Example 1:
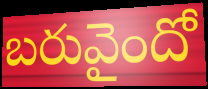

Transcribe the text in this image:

బరువైందో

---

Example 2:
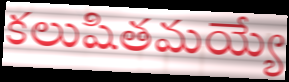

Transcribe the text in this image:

కలుషితమయ్యే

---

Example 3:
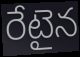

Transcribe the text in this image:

రేటైన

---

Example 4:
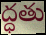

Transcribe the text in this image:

ద్ధతు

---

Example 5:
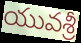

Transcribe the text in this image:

యువశ్రీ